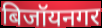
बिजॉयनगर